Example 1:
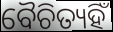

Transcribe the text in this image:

ବୈଚିତ୍ୟହିଁ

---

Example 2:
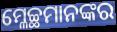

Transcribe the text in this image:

ମ୍ଳେଚ୍ଛମାନଙ୍କର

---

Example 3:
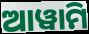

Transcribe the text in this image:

ଆୱାମି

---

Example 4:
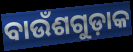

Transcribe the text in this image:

ବାଉଁଶଗୁଡ଼ାକ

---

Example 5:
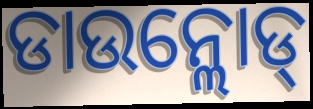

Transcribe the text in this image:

ଡାଉନ୍ଲୋଡ୍